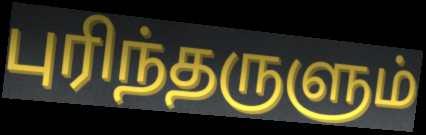
புரிந்தருளும்